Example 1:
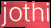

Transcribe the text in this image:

jothi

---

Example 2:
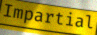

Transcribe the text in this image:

Impartial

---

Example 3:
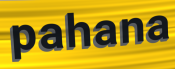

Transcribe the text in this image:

pahana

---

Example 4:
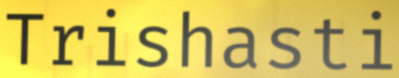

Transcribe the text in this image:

Trishasti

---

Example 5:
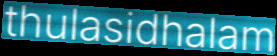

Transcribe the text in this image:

thulasidhalam